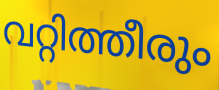
വറ്റിത്തീരും